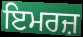
ਇਮਰਜ਼